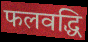
फलवद्धि